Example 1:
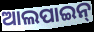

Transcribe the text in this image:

ଆଲପାଇନ୍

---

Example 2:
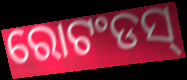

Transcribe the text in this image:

ରୋଟଂଡସ୍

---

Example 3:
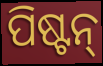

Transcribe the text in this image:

ପିଷ୍ଟନ୍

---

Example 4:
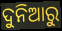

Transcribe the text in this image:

ଦୁନିଆରୁ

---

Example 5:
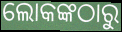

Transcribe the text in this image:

ଲୋକଙ୍କଠାରୁ